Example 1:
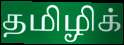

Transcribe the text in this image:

தமிழிக்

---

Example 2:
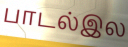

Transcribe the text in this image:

பாடல்இல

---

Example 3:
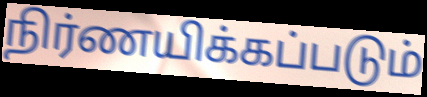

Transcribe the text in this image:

நிர்ணயிக்கப்படும்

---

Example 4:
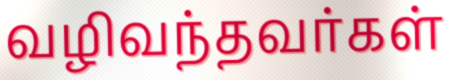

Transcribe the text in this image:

வழிவந்தவர்கள்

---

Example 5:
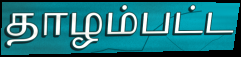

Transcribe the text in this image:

தாழம்பட்ட